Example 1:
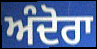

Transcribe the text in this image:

ਅੰਦੋਰਾ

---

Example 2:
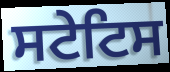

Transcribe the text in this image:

ਸਟੇਟਿਸ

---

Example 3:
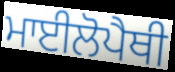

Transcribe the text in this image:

ਮਾਈਲੋਪੈਥੀ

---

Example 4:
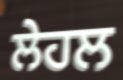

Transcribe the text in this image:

ਲੇਹਲ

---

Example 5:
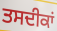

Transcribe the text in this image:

ਤਸਦੀਕਾਂ